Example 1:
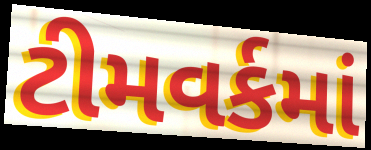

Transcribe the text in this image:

ટીમવર્કમાં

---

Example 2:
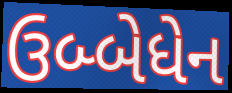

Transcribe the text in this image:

ઉબ્બેધેન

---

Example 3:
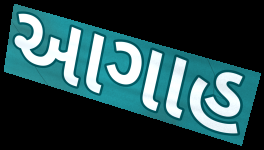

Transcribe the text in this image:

આગાહ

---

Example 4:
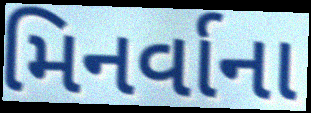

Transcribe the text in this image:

મિનર્વાના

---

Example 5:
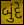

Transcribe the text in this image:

બુંદે